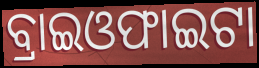
ବ୍ରାଇଓଫାଇଟା